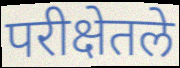
परीक्षेतले